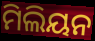
ମିଲିୟନ